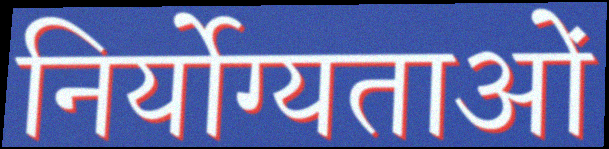
निर्योग्यताओं